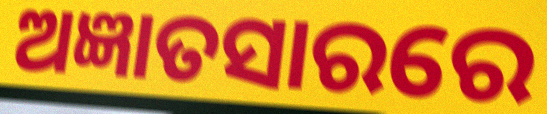
ଅଜ୍ଞାତସାରରେ